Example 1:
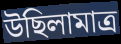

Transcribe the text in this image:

উছিলামাত্র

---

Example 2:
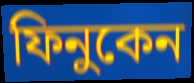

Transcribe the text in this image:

ফিনুকেন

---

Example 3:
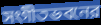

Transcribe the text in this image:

সংগীতভবনের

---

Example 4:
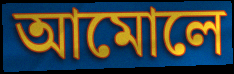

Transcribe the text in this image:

আমোলে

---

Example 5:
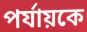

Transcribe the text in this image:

পর্যায়কে